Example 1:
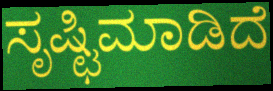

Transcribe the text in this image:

ಸೃಷ್ಟಿಮಾಡಿದೆ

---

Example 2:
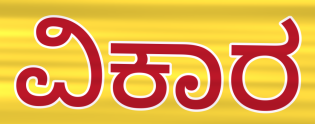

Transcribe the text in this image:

ವಿಕಾರ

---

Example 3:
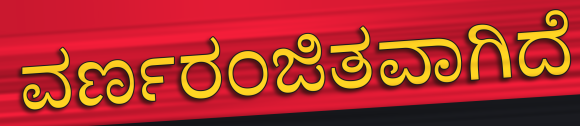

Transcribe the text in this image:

ವರ್ಣರಂಜಿತವಾಗಿದೆ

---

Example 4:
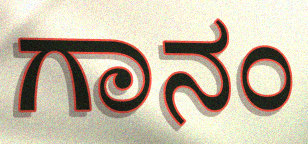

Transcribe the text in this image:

ಗಾನಂ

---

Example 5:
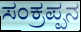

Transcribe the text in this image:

ಸಂಕ್ರಪ್ಪನ